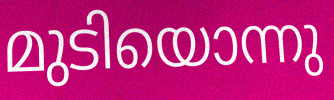
മുടിയൊന്നു